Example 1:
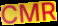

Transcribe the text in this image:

CMR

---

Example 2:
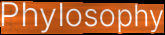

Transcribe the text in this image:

Phylosophy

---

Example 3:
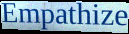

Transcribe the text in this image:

Empathize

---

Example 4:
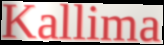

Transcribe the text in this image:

Kallima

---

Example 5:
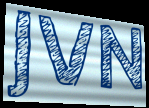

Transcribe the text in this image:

JVN